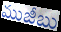
ముజీబు